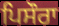
ਪਿਸੌਰਾ